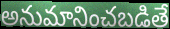
అనుమానించబడితే